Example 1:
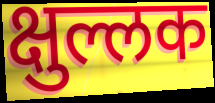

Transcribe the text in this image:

क्षुल्लक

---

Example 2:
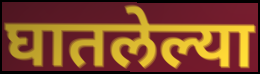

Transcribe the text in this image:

घातलेल्या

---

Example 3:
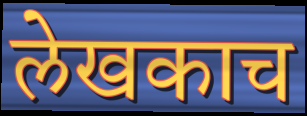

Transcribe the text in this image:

लेखकाच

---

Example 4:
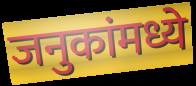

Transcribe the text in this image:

जनुकांमध्ये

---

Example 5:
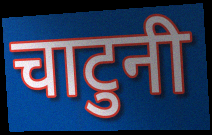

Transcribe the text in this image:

चाटुनी